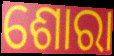
ଶୋରା